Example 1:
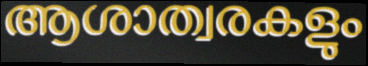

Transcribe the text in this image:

ആശാത്വരകളും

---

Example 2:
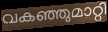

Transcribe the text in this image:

വകഞ്ഞുമാറ്റി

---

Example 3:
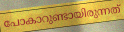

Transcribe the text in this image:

പോകാറുണ്ടായിരുന്നത്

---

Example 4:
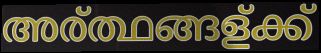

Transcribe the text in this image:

അര്ത്ഥങ്ങള്ക്ക്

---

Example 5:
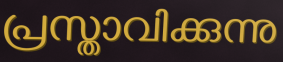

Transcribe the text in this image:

പ്രസ്താവിക്കുന്നു